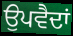
ਉਪਵੈਦਾਂ